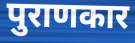
पुराणकार